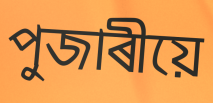
পুজাৰীয়ে